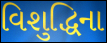
વિશુદ્ધિના